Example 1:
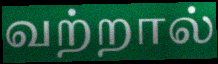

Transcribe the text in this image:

வற்றால்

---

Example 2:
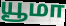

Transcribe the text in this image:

யூமா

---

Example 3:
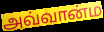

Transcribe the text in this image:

அவ்வான்ம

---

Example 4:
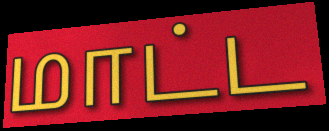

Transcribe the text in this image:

மாட்ட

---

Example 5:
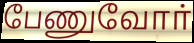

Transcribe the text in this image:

பேணுவோர்